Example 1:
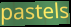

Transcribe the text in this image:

pastels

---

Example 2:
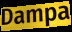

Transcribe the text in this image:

Dampa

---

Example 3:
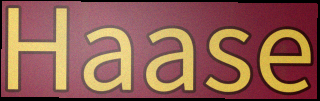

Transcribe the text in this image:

Haase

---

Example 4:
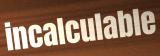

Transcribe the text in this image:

incalculable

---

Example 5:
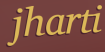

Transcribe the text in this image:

jharti